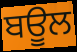
ਬਊਲ